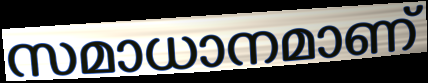
സമാധാനമാണ്